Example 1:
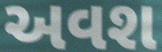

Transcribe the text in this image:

અવશ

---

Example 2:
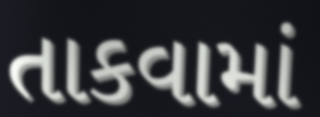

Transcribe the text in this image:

તાકવામાં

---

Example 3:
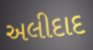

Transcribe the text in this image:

અલીદાદ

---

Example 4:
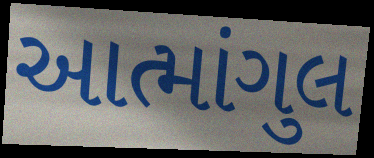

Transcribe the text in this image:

આત્માંગુલ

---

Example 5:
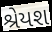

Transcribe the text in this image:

શ્રેયશ